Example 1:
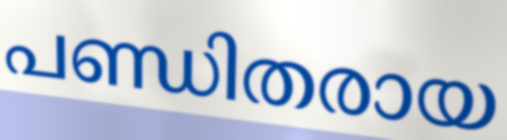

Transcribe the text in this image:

പണ്ഡിതരായ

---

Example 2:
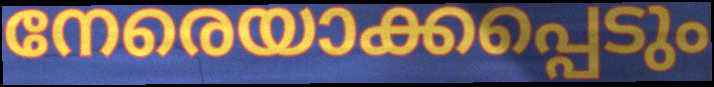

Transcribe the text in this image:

നേരെയാക്കപ്പെടും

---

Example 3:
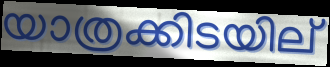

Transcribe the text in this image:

യാത്രക്കിടയില്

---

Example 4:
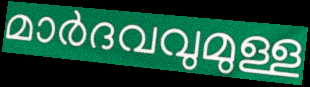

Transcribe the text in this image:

മാർദവവുമുള്ള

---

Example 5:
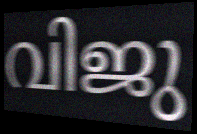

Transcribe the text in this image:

വിജു